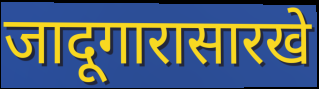
जादूगारासारखे